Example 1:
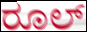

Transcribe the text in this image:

ರೂಲ್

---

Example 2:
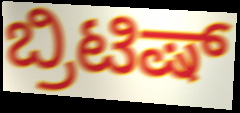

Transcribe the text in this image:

ಬ್ರಿಟಿಷ್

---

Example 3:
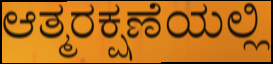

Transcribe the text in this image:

ಆತ್ಮರಕ್ಷಣೆಯಲ್ಲಿ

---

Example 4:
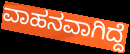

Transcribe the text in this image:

ವಾಹನವಾಗಿದ್ದೆ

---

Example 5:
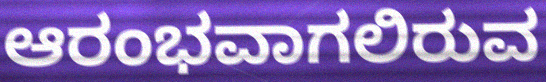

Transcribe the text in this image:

ಆರಂಭವಾಗಲಿರುವ